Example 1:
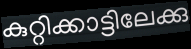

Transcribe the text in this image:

കുറ്റിക്കാട്ടിലേക്കു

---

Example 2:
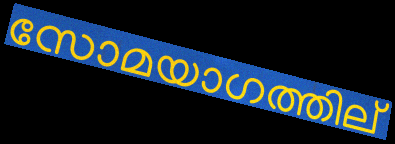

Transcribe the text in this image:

സോമയാഗത്തില്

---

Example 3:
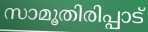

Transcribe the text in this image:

സാമൂതിരിപ്പാട്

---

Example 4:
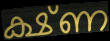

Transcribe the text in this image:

ക്ഷ്ണ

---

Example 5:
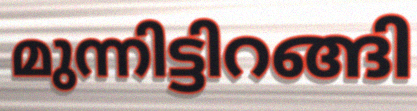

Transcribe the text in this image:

മുന്നിട്ടിറങ്ങി